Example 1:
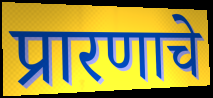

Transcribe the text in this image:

प्रारणाचे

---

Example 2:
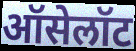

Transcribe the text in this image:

ऑसेलॉट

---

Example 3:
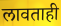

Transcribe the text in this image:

लावताही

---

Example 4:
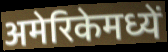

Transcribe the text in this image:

अमेरिकेमध्यें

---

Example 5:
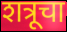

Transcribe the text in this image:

शत्रूचा